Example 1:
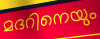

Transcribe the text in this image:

മദറിനെയും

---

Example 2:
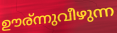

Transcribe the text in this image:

ഊര്ന്നുവീഴുന്ന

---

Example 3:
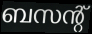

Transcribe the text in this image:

ബസന്റ്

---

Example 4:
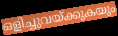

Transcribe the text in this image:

ഒളിച്ചുവയ്ക്കുകയും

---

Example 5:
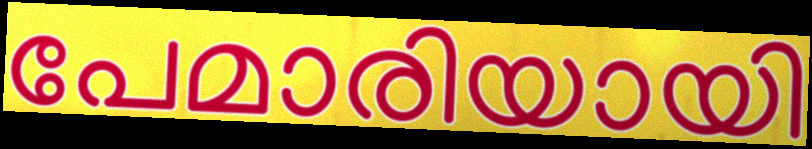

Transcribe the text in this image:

പേമാരിയായി